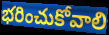
భరించుకోవాలి